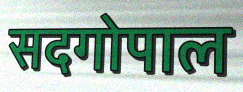
सदगोपाल